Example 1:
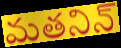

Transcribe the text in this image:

మతనిన్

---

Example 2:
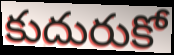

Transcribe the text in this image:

కుదురుకో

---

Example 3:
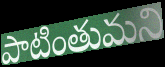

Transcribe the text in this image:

పాటింతుమని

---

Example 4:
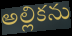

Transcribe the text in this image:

అల్లికను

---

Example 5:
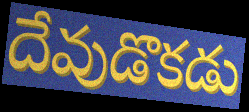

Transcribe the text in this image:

దేవుడొకడు